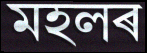
মহলৰ